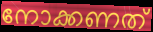
നോക്കണത്